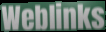
Weblinks